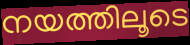
നയത്തിലൂടെ